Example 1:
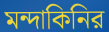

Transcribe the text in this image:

মন্দাকিনির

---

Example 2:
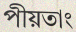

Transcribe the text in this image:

পীয়তাং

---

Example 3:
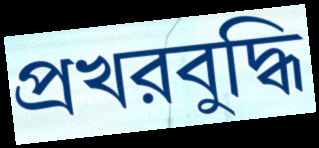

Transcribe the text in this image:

প্রখরবুদ্ধি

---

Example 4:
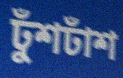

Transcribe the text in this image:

ঢুঁশঢাঁশ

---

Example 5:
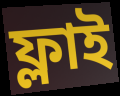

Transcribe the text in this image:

ফ্লাই